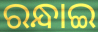
ରନ୍ଧାଇ